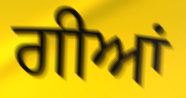
ਗੀਆਂ